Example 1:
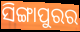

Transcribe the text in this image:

ସିଙ୍ଗାପୁରର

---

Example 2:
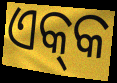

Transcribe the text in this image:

ଏକ୍‍କ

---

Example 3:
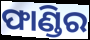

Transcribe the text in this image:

ଫାଣ୍ଡିର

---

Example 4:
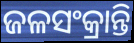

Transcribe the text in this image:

ଜଳସଂକ୍ରାନ୍ତି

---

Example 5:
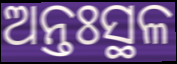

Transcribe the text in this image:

ଅନ୍ତଃସ୍ଥଳ